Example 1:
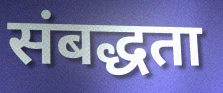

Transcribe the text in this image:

संबद्धता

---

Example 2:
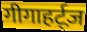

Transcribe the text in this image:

गीगाहर्ट्ज़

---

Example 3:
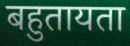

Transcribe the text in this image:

बहुतायता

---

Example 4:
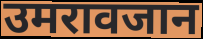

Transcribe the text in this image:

उमरावजान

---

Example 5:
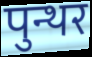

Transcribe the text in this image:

पुन्थर